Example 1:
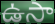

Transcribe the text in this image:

ఉసా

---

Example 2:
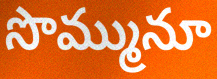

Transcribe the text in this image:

సొమ్మునూ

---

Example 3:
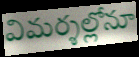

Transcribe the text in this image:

విమర్శల్లోనూ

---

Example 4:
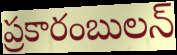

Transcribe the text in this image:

ప్రకారంబులన్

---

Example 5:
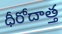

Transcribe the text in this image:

ధీరోదాత్త